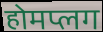
होमप्लग